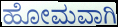
ಹೋಮವಾಗಿ